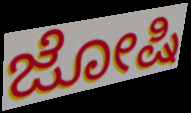
ಜೋಷಿ